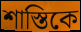
শাস্তিকে